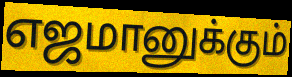
எஜமானுக்கும்